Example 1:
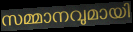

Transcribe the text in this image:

സമ്മാനവുമായി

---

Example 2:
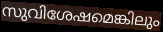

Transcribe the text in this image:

സുവിശേഷമെങ്കിലും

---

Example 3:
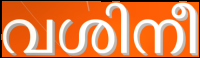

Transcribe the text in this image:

വശിനീ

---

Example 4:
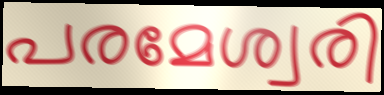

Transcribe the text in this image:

പരമേശ്വരി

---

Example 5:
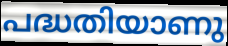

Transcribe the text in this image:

പദ്ധതിയാണു